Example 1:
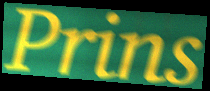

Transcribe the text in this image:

Prins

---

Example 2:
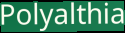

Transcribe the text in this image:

Polyalthia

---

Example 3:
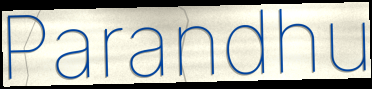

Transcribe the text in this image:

Parandhu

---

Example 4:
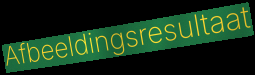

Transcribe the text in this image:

Afbeeldingsresultaat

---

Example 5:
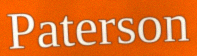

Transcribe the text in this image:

Paterson